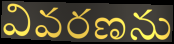
వివరణను